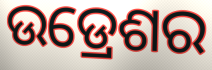
ଉଡ୍ରେଶର